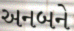
અનબને